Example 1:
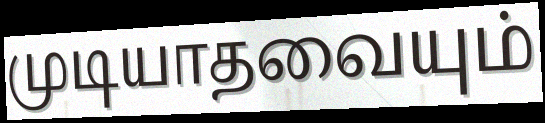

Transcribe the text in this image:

முடியாதவையும்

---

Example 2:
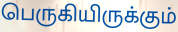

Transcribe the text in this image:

பெருகியிருக்கும்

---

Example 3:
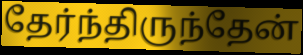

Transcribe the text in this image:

தேர்ந்திருந்தேன்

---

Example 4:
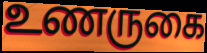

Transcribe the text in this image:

உணருகை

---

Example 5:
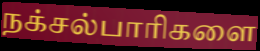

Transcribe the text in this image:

நக்சல்பாரிகளை